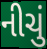
નીચું